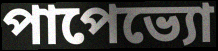
পাপেভ্যো